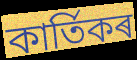
কাৰ্তিকৰ